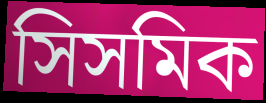
সিসমিক